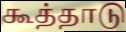
கூத்தாடு